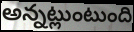
అన్నట్లుంటుంది